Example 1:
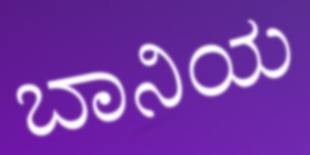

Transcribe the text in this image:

ಬಾನಿಯ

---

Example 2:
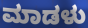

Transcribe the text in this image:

ಮಾಡಳು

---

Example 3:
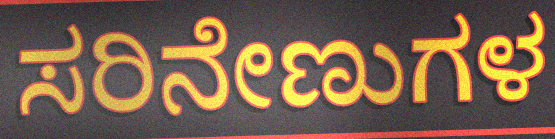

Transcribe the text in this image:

ಸರಿನೇಣುಗಳ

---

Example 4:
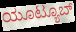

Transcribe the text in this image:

ಯೂಟ್ಯೂಬ್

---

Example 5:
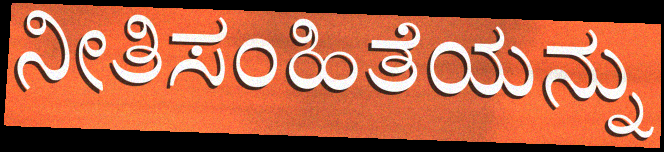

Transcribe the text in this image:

ನೀತಿಸಂಹಿತೆಯನ್ನು